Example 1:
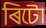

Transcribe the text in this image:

ৰিটো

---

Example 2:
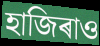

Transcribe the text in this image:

হাজিৰাও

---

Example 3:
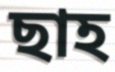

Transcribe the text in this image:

ছাহ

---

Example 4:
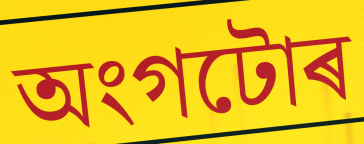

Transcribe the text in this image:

অংগটোৰ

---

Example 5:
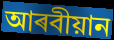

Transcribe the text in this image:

আৰবীয়ান